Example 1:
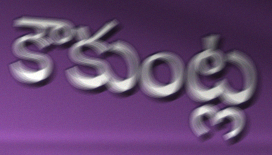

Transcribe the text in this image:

కౌకుంట్ల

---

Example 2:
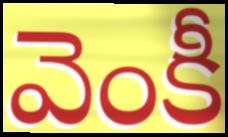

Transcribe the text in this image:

వెంకీ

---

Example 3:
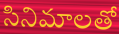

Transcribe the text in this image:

సినిమాలతో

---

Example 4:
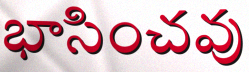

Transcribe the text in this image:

భాసించవు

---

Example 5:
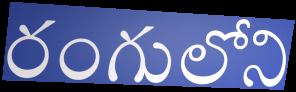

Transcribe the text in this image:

రంగులోని